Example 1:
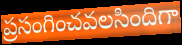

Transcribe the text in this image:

ప్రసంగించవలసిందిగా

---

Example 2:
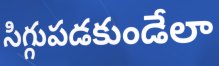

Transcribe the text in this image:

సిగ్గుపడకుండేలా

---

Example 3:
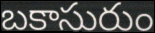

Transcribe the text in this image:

బకాసురుం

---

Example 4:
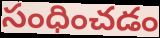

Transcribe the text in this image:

సంధించడం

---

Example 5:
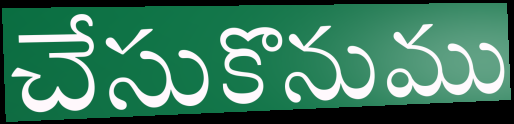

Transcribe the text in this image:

చేసుకొనుము